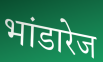
भांडारेज